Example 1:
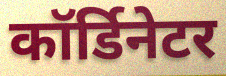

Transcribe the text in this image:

कॉर्डिनेटर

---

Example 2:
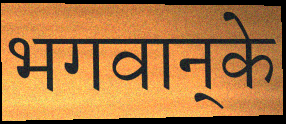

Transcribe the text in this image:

भगवान्‌के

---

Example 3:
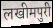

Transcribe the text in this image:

लखीमपुरी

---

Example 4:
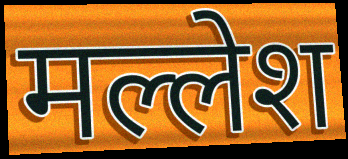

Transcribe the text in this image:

मल्लेश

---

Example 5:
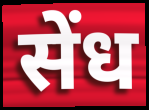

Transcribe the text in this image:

सेंध